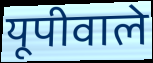
यूपीवाले